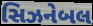
સિઝનેબલ